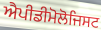
ਐਪੀਡੀਮੋਲੋਜਿਸਟ